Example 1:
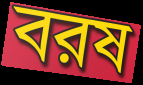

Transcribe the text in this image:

বরষ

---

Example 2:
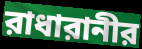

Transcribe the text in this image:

রাধারানীর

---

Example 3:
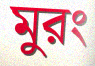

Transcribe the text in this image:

মুরং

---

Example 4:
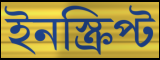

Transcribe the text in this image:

ইনস্ক্রিপ্ট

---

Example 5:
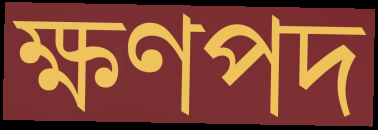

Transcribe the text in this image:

ক্ষণপদ